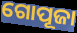
ଗୋପୂଜା